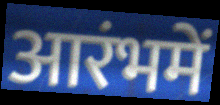
आरंभमें